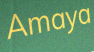
Amaya